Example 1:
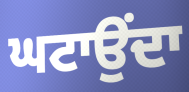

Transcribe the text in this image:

ਘਟਾਉਂਦਾ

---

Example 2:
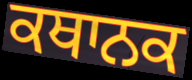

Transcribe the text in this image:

ਕਥਾਨਕ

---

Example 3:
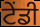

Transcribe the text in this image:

ਟੇਂਡੀ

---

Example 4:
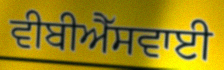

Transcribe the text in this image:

ਵੀਬੀਐੱਸਵਾਈ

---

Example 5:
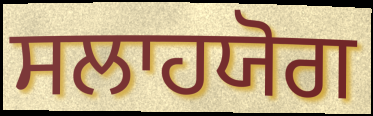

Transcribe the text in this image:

ਸਲਾਹਯੋਗ